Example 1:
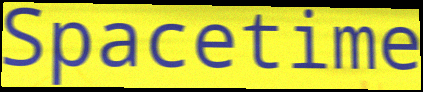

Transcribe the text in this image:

Spacetime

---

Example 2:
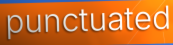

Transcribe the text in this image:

punctuated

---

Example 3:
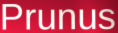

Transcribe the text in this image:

Prunus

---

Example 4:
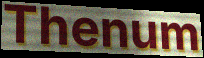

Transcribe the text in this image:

Thenum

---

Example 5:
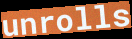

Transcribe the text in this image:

unrolls